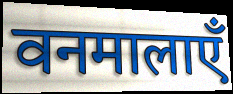
वनमालाएँ